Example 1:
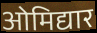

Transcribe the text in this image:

ओमिद्यार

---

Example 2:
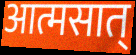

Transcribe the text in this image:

आत्मसात्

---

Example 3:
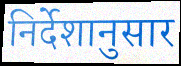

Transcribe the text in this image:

निर्देशानुसार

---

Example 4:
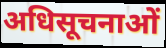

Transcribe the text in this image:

अधिसूचनाओं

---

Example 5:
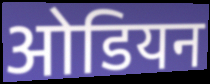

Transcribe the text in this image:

ओडियन